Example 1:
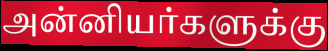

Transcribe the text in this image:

அன்னியர்களுக்கு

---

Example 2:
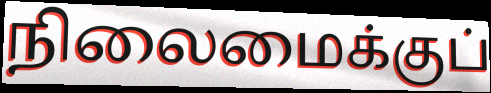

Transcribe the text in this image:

நிலைமைக்குப்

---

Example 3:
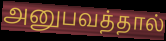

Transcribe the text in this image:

அனுபவத்தால்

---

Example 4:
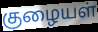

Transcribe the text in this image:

குழையள்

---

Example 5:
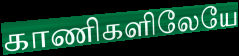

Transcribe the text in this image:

காணிகளிலேயே